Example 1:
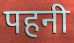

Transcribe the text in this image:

पहनी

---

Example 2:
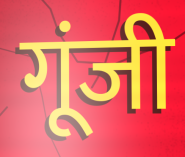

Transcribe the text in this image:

गूंजी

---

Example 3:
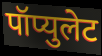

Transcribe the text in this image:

पॉप्युलेट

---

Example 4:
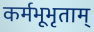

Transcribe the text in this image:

कर्मभूभृताम्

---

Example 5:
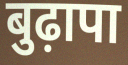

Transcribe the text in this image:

बुढ़ापा